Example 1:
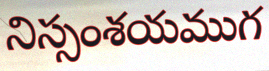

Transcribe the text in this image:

నిస్సంశయముగ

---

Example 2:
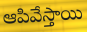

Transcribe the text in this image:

ఆపివేస్తాయి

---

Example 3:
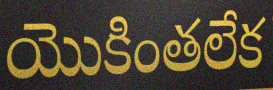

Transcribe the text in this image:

యొకింతలేక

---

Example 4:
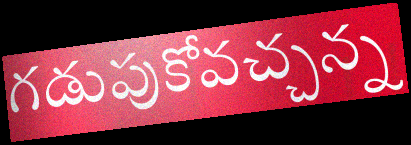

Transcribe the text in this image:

గడుపుకోవచ్చన్న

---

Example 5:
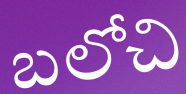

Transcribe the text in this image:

బలోచి